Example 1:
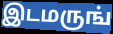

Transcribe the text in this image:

இடமருங்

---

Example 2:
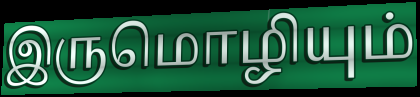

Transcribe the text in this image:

இருமொழியும்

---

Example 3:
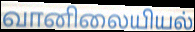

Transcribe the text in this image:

வானிலையியல்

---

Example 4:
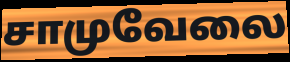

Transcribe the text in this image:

சாமுவேலை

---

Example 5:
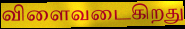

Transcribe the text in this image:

விளைவடைகிறது